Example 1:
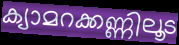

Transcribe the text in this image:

ക്യാമറക്കണ്ണിലൂട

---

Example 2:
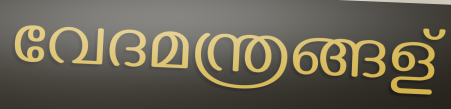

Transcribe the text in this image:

വേദമന്ത്രങ്ങള്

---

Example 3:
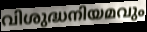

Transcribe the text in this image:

വിശുദ്ധനിയമവും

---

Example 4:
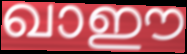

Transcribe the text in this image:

ഖാഈ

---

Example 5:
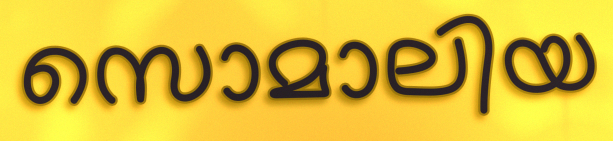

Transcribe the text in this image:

സൊമാലിയ